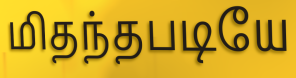
மிதந்தபடியே